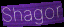
Shagor